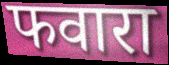
फवारा